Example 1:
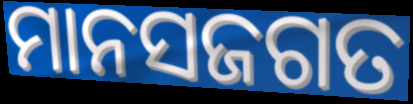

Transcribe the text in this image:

ମାନସଜଗତ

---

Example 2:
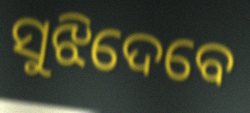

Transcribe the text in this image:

ସୁଝିଦେବେ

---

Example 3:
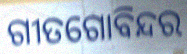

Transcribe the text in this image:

ଗୀତଗୋବିନ୍ଦର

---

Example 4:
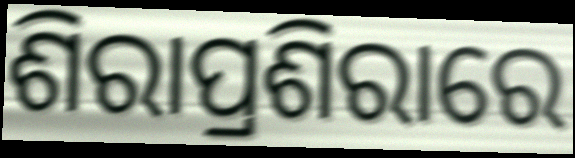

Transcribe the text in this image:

ଶିରାପ୍ରଶିରାରେ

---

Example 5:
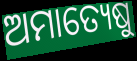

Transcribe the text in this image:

ଅମାତ୍ୟେଷୁ